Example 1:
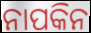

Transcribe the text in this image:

ନାପକିନ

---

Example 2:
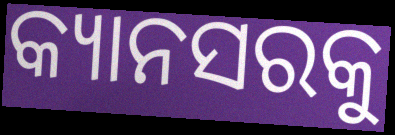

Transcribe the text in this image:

କ୍ୟାନସରକୁ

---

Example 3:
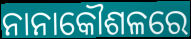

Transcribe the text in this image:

ନାନାକୌଶଳରେ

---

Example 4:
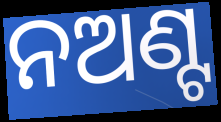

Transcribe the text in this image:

ନଅଣ୍ଟ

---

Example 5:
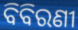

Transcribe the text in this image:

ବିବିରଣୀ